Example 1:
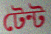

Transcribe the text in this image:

টেন্ট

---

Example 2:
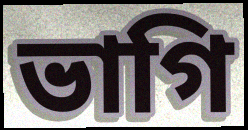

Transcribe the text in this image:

ভাগি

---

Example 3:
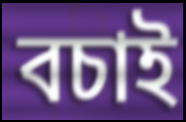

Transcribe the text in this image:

বচাই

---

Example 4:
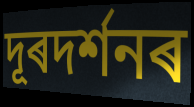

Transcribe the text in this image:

দূৰদৰ্শনৰ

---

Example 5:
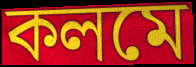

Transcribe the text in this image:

কলমে